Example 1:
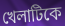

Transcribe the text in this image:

খেলাটিকে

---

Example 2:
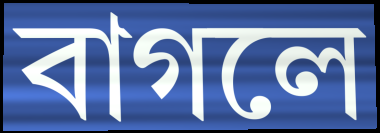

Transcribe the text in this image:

বাগলে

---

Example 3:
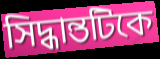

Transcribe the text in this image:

সিদ্ধান্তটিকে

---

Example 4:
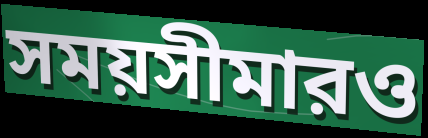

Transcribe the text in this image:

সময়সীমারও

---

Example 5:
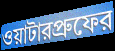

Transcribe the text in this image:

ওয়াটারপ্রুফের